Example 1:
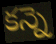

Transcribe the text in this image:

కన్నె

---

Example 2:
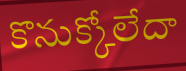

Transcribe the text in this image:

కొనుక్కోలేదా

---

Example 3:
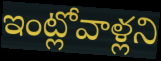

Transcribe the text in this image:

ఇంట్లోవాళ్లని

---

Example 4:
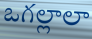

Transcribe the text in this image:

ఒగల్లాలా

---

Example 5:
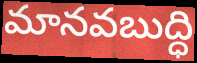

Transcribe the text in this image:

మానవబుద్ధి